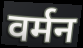
वर्मन